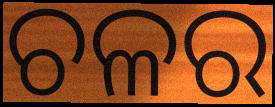
ଚଳର